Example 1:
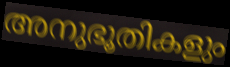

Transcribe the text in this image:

അനുഭൂതികളും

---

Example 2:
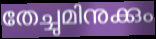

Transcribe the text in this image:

തേച്ചുമിനുക്കും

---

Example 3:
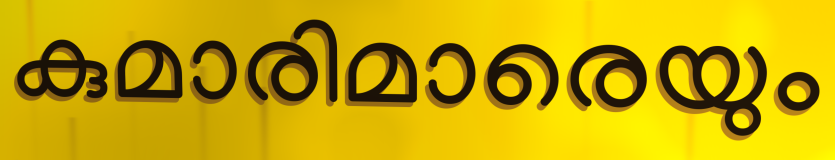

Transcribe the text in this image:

കുമാരിമാരെയും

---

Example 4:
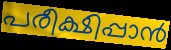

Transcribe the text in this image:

പരീക്ഷിപ്പാൻ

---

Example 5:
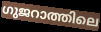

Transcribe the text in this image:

ഗുജറാത്തിലെ